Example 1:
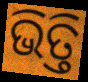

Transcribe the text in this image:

ଭିତ୍ତି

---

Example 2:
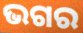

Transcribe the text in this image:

ଭଗର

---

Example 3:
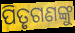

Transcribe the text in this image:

ପିତୃଗଣଙ୍କୁ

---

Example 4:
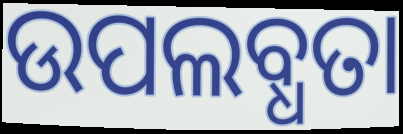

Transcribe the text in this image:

ଉପଲବ୍ଧତା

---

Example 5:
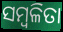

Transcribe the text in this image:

ସମ୍ବଳିତା